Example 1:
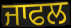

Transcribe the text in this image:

ਜਾਫਲ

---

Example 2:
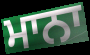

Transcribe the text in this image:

ਮਾਨਾ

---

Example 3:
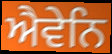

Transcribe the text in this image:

ਐਵੇਨਿ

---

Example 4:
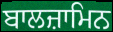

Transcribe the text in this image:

ਬਾਲਜ਼ਾਮਿਨ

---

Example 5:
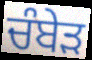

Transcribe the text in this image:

ਚੰਬੇੜ